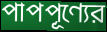
পাপপূণ্যের